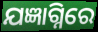
ଯଜ୍ଞାଗ୍ନିରେ